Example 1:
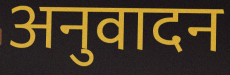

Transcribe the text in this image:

अनुवादन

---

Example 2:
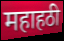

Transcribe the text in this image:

महाहठी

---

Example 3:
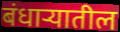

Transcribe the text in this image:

बंधाऱ्यातील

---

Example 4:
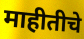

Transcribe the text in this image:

माहीतीचे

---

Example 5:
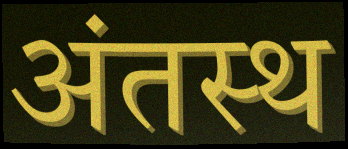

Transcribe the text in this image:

अंतस्थ